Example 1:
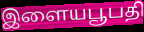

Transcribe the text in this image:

இளையபூபதி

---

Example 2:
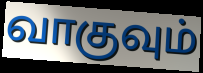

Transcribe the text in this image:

வாகுவும்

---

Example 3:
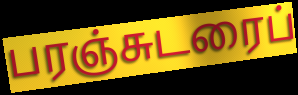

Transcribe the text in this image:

பரஞ்சுடரைப்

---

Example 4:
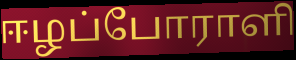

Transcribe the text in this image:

ஈழப்போராளி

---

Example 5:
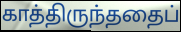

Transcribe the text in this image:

காத்திருந்ததைப்